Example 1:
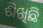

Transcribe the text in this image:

ଶିଖିଛି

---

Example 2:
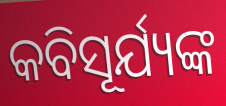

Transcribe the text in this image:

କବିସୂର୍ଯ୍ୟଙ୍କ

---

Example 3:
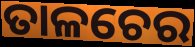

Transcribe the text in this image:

ତାଳଚେର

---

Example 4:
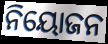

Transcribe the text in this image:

ନିୟୋଜନ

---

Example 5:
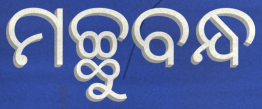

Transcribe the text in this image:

ମଚ୍ଛୁବନ୍ଧ